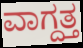
ವಾಗ್ದತ್ತ